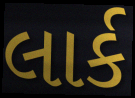
લાર્ક